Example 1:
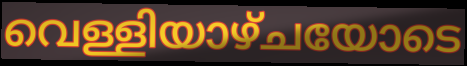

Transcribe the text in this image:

വെള്ളിയാഴ്ചയോടെ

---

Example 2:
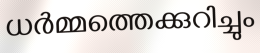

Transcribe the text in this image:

ധർമ്മത്തെക്കുറിച്ചും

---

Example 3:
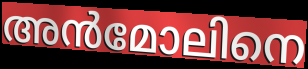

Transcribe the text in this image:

അൻമോലിനെ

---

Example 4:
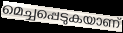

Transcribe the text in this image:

മെച്ചപ്പെടുകയാണ്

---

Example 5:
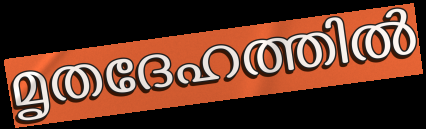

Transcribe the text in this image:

മൃതദേഹത്തിൽ